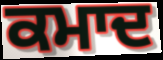
ਕਮਾਦ